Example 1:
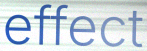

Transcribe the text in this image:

effect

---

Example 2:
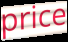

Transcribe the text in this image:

price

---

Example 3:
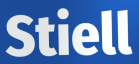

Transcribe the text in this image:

Stiell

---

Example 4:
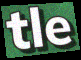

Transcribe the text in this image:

tle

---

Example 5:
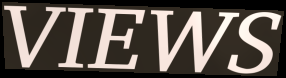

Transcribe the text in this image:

VIEWS